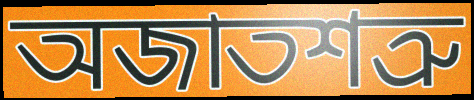
অজাতশত্রু